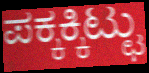
ಪಕ್ಕಕ್ಕಿಟ್ಟು